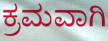
ಕ್ರಮವಾಗಿ